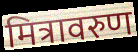
मित्रावरुण